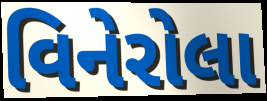
વિનેરોલા